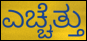
ಎಚ್ಚೆತ್ತು